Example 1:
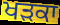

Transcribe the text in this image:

ਖੜਕਾ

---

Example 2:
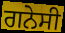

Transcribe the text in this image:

ਗਨੇਸੀ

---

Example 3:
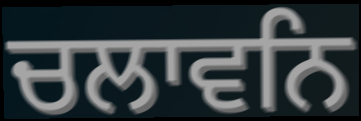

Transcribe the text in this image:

ਚਲਾਵਨਿ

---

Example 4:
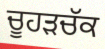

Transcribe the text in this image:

ਚੂਹਡ਼ਚੱਕ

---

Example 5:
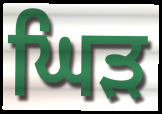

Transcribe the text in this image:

ਘਿੜ